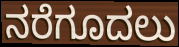
ನರೆಗೂದಲು